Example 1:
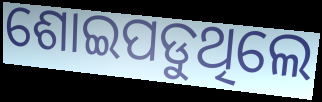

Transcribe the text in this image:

ଶୋଇପଡୁଥିଲେ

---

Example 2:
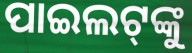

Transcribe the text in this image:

ପାଇଲଟ୍‌ଙ୍କୁ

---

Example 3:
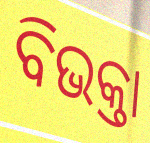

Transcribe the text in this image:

ବିଭକ୍ତା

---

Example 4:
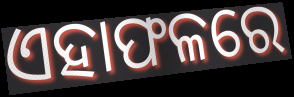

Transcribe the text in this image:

ଏହାଫଳରେ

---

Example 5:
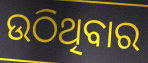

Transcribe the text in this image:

ଉଠିଥିବାର